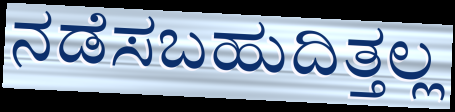
ನಡೆಸಬಹುದಿತ್ತಲ್ಲ